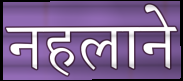
नहलाने